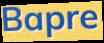
Bapre